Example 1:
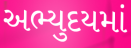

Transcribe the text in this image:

અભ્યુદયમાં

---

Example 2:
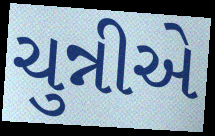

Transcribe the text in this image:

ચુન્નીએ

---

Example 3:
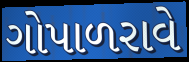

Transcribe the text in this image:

ગોપાળરાવે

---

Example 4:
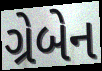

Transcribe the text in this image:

ગ્રેબેન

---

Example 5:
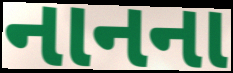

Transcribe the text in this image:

નાનના